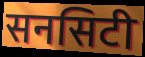
सनसिटी